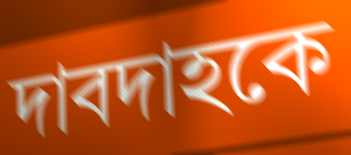
দাবদাহকে